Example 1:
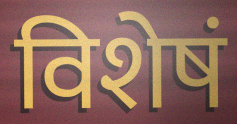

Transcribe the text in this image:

विशेषं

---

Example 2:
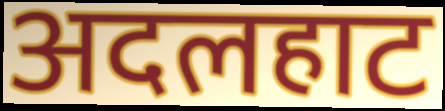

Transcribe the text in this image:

अदलहाट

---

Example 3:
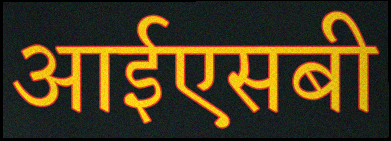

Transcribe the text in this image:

आईएसबी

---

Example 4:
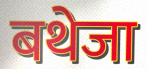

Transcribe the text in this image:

बथेजा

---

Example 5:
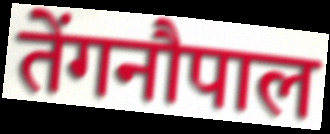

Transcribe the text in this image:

तेंगनौपाल